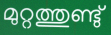
മുറ്റത്തുണ്ടു്